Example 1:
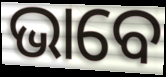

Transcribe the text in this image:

ଭାବେ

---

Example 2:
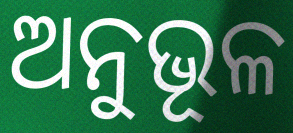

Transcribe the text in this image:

ଅନୁଭୂଳ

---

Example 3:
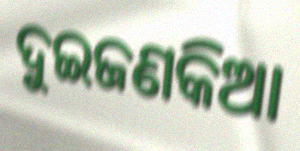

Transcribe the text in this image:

ଦୁଇଜଣକିଆ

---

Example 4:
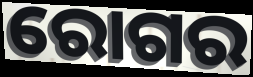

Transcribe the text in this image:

ରୋଗର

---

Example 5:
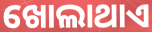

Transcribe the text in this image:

ଖୋଲାଥାଏ